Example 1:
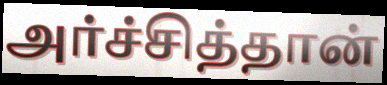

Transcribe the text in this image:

அர்ச்சித்தான்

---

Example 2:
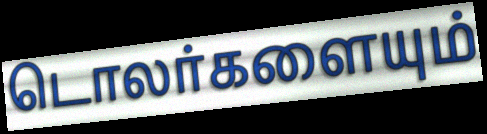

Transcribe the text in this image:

டொலர்களையும்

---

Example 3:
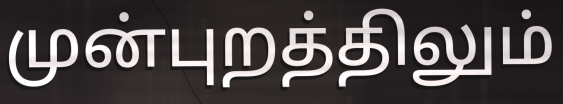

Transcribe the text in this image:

முன்புறத்திலும்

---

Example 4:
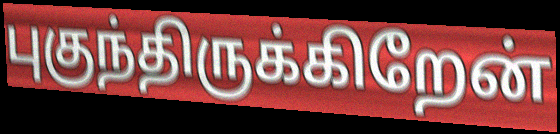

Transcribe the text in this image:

புகுந்திருக்கிறேன்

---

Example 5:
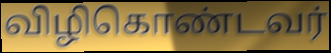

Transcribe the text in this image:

விழிகொண்டவர்